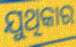
ଯୁଥିକାର